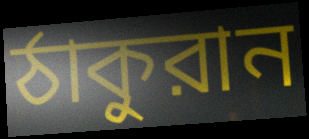
ঠাকুরান